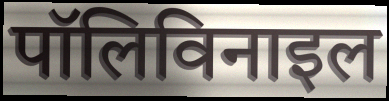
पॉलिविनाइल